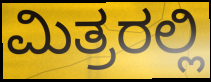
ಮಿತ್ರರಲ್ಲಿ